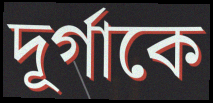
দূর্গাকে